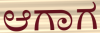
ಆಗಾಗ